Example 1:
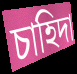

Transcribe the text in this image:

চাহিদা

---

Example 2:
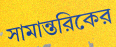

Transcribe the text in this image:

সামান্তরিকের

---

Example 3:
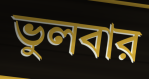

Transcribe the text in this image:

ভুলবার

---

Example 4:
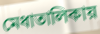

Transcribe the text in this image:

মেধাতালিকায়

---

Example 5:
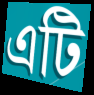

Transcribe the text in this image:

এটি